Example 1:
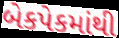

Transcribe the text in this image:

બેકપેકમાંથી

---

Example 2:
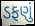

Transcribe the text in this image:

ડફણું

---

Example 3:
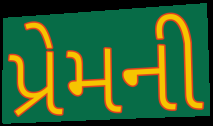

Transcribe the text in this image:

પ્રેમની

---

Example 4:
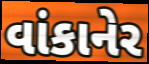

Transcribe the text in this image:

વાંકાનેર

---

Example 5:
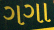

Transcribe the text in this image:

ગગા